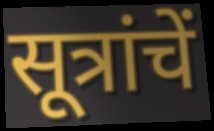
सूत्रांचें